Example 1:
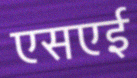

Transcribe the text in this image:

एसएई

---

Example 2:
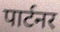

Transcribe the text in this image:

पार्टनर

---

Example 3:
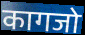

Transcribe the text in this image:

कागजो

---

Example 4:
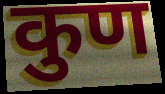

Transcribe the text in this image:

कुण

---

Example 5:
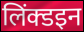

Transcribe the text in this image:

लिंक्डइन